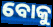
ବୋକୁ